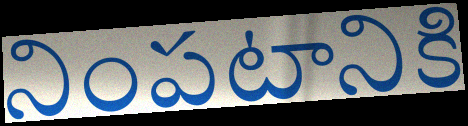
నింపటానికి